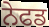
ਨੇਫਡ